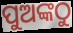
ପୁଅଙ୍କଠୁ